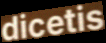
dicetis